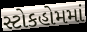
સ્ટોકહોમમાં